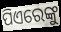
ପିଏରେଙ୍କୁ